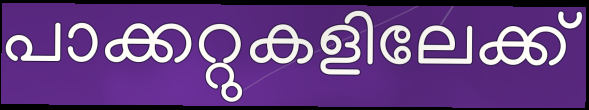
പാക്കറ്റുകളിലേക്ക്